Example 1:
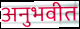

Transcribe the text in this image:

अनुभवीत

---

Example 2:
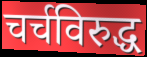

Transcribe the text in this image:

चर्चविरुद्ध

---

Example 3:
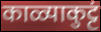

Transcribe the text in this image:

काळ्याकुट्टं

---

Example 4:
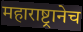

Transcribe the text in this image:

महाराष्ट्रानेच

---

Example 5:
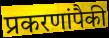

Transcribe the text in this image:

प्रकरणांपैकी